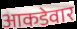
आकडेवार